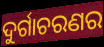
ଦୁର୍ଗାଚରଣର